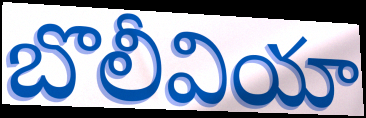
బొలీవియా